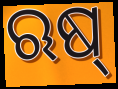
ଋଷ୍